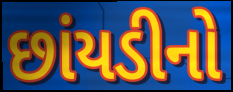
છાંયડીનો